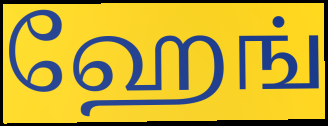
ஹேங்